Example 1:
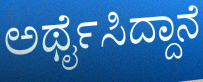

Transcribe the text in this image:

ಅರ್ಥೈಸಿದ್ದಾನೆ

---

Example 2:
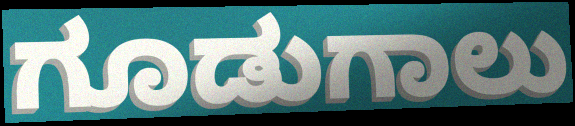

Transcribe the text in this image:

ಗೂಡುಗಾಲು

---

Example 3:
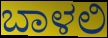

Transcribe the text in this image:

ಬಾಳಲಿ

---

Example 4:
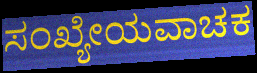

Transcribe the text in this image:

ಸಂಖ್ಯೇಯವಾಚಕ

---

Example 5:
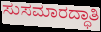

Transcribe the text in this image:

ಸುಸಮಾರದ್ಧಾತಿ